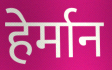
हेर्मान